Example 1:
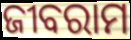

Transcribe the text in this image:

ଜୀବରାମ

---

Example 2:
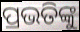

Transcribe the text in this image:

ପ୍ରଭତିଙ୍କୁ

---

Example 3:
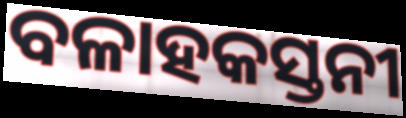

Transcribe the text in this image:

ବଳାହକସ୍ତନୀ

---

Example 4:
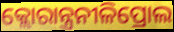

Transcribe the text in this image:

କ୍ଲୋରାନ୍ତ୍ରନୀଳିପ୍ରୋଲ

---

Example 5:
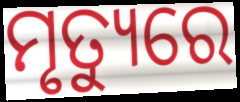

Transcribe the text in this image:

ମୃତ୍ୟୁରେ